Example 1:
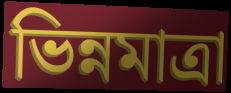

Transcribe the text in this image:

ভিন্নমাত্রা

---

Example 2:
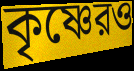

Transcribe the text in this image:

কৃষ্ণেরও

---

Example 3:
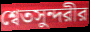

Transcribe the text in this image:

শ্বেতসুন্দরীর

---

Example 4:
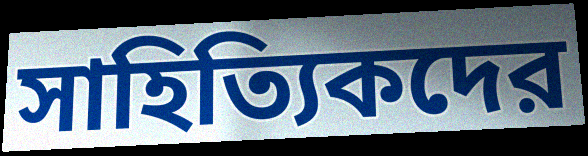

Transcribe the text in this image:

সাহিত্যিকদের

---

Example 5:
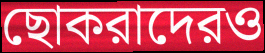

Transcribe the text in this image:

ছোকরাদেরও